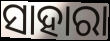
ସାହାରା